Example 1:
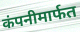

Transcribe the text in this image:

कंपनीमार्फत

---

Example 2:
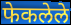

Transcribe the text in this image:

फेकलेले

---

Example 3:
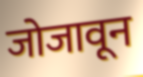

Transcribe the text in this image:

जोजावून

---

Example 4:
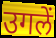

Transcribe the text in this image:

उगलें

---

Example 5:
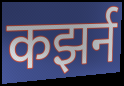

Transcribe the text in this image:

कझर्न